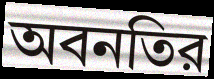
অবনতির